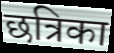
छत्रिका